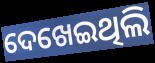
ଦେଖେଇଥିଲି